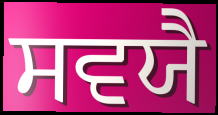
ਸਵਯੈ